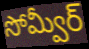
సోమ్వీర్